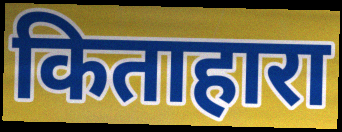
किताहारा